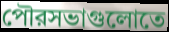
পৌরসভাগুলোতে